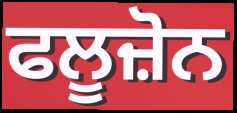
ਫਲੂਜ਼ੋਨ